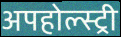
अपहोल्स्ट्री